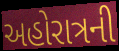
અહોરાત્રની